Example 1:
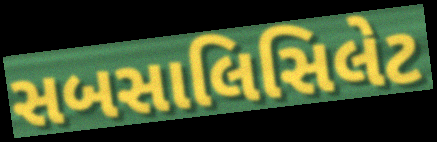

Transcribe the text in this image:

સબસાલિસિલેટ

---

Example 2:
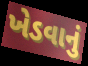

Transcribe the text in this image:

ખેડવાનું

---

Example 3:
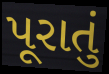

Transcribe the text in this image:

પૂરાતું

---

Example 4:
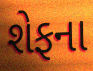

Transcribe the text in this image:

શેફના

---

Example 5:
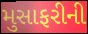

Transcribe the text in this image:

મુસાફરીની